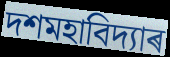
দশমহাবিদ্যাৰ